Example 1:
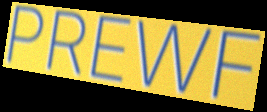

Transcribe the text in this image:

PREWF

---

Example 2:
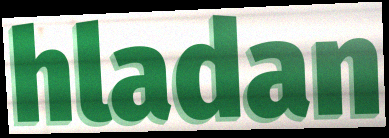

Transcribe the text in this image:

hladan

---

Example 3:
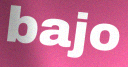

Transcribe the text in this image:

bajo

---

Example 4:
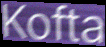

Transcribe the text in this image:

Kofta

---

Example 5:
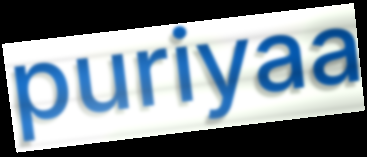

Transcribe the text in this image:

puriyaa